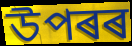
উপৰৰ